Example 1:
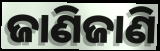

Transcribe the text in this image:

ଜାଣିଜାଣି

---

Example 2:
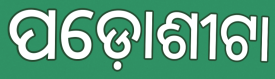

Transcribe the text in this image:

ପଡ଼ୋଶୀଟା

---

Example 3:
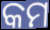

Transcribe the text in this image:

କମ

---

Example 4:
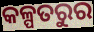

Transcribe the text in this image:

କଳ୍ପତରୁର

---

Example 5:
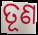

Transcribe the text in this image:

ତୂଣ